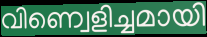
വിണ്വെളിച്ചമായി